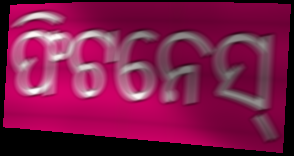
ଫିଟନେସ୍